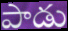
పాడు